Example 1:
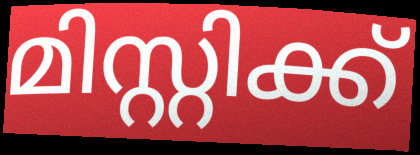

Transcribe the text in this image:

മിസ്റ്റിക്ക്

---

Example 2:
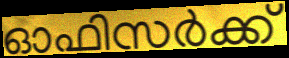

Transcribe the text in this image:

ഓഫിസർക്ക്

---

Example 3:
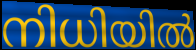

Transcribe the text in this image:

നിധിയിൽ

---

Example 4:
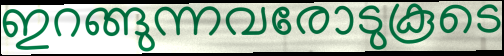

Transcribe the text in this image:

ഇറങ്ങുന്നവരോടുകൂടെ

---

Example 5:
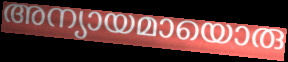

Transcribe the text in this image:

അന്യായമായൊരു